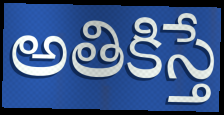
అతికిస్తే